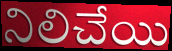
నిలిచేయి